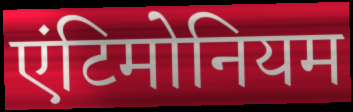
एंटिमोनियम